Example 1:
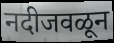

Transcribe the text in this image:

नदीजवळून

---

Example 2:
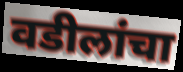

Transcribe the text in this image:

वडीलांचा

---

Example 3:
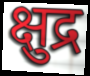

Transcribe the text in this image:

क्षुद्र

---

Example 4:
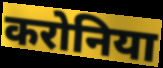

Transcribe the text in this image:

करोनिया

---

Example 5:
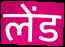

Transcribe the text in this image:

लेंड